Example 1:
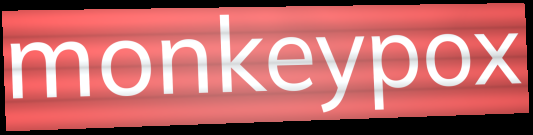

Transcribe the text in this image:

monkeypox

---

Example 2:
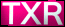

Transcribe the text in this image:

TXR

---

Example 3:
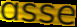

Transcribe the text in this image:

asse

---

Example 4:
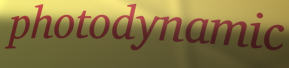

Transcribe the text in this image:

photodynamic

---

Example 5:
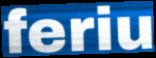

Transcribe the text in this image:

feriu